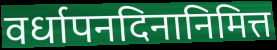
वर्धापनदिनानिमित्त